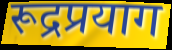
रूद्रप्रयाग